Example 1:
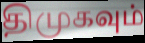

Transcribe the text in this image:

திமுகவும்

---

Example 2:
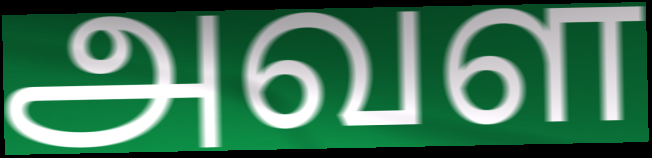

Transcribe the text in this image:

அவள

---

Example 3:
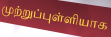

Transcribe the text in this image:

முற்றுப்புள்ளியாக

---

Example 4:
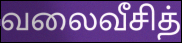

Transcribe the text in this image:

வலைவீசித்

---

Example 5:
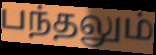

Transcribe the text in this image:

பந்தலும்